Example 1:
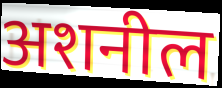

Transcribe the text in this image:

अशनील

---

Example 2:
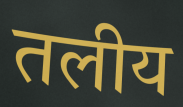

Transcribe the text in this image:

तलीय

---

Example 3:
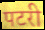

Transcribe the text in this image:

पटरी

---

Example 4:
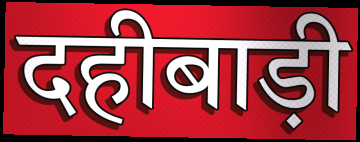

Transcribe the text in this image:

दहीबाड़ी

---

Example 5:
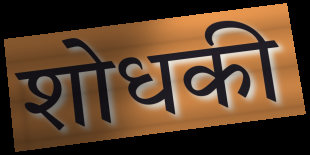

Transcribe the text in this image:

शोधकी